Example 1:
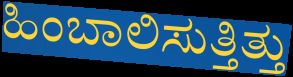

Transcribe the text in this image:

ಹಿಂಬಾಲಿಸುತ್ತಿತ್ತು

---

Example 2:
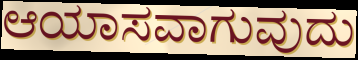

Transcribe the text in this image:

ಆಯಾಸವಾಗುವುದು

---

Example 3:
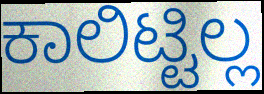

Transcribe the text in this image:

ಕಾಲಿಟ್ಟಿಲ್ಲ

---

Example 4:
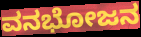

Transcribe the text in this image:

ವನಭೋಜನ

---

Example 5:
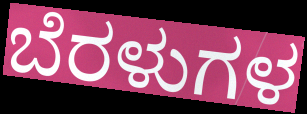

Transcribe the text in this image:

ಬೆರಳುಗಳ